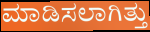
ಮಾಡಿಸಲಾಗಿತ್ತು